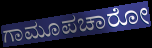
ಗಾಮೂಪಚಾರೋ